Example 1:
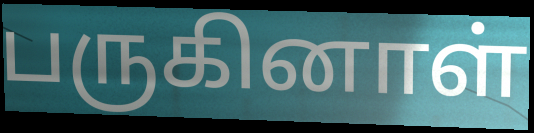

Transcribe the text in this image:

பருகினாள்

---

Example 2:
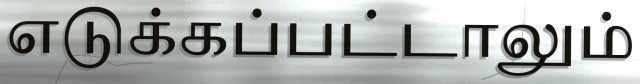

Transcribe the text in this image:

எடுக்கப்பட்டாலும்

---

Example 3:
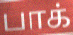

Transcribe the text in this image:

பாக்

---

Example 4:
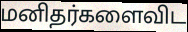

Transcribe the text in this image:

மனிதர்களைவிட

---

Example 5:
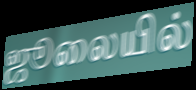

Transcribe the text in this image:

ஜூலையில்